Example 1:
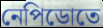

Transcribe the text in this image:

নেপিডোতে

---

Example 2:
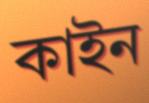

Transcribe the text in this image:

কাইন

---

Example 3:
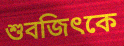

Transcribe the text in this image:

শুবজিৎকে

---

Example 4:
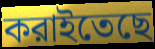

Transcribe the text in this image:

করাইতেছে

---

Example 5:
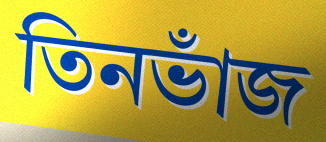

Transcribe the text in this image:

তিনভাঁজ